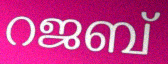
റജബ്